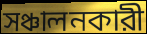
সঞ্চালনকারী